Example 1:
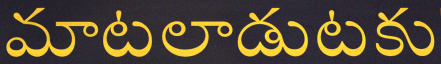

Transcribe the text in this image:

మాటలాడుటకు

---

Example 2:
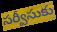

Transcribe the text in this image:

సర్వీసుకు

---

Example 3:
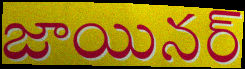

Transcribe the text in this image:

జాయినర్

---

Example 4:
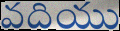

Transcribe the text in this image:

వదియు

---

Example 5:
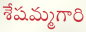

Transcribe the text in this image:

శేషమ్మగారి